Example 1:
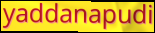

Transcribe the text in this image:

yaddanapudi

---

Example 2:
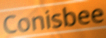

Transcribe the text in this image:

Conisbee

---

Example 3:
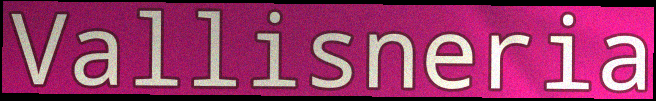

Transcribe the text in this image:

Vallisneria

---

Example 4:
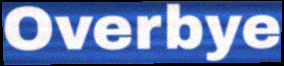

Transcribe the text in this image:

Overbye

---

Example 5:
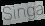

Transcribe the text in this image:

Singa